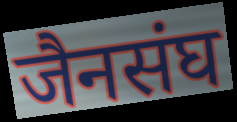
जैनसंघ